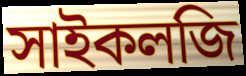
সাইকলজি